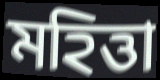
মহিত্তা